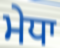
ਮੇਧਾ